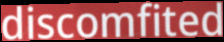
discomfited